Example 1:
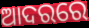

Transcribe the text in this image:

ଆଦରରେ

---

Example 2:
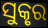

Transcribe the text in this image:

ସୁକୃର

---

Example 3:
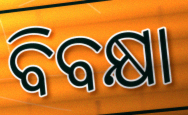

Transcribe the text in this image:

ବିବକ୍ଷା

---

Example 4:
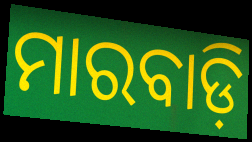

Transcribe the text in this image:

ମାରବାଡ଼ି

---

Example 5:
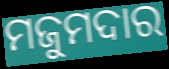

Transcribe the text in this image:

ମଜୁମଦାର